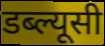
डब्ल्यूसी